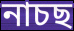
নাচছ